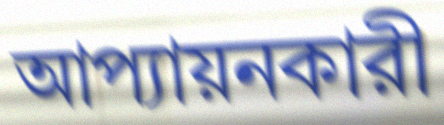
আপ্যায়নকারী